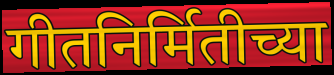
गीतनिर्मितीच्या